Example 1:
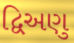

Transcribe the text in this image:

દ્વિઅણુ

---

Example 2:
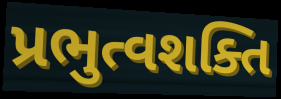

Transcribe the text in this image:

પ્રભુત્વશક્તિ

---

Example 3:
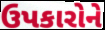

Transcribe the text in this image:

ઉપકારોને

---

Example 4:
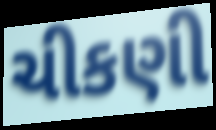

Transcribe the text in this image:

ચીકણી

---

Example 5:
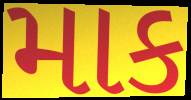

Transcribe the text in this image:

માક